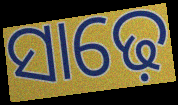
ସାଢ଼େ